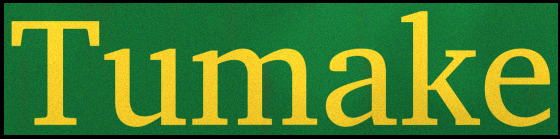
Tumake